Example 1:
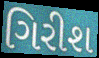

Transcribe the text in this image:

ગિરીશ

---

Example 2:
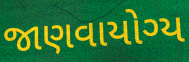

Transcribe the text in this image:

જાણવાયોગ્ય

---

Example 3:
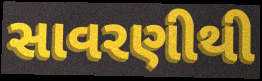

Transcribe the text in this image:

સાવરણીથી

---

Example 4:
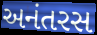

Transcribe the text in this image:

અનંતરસ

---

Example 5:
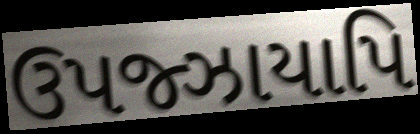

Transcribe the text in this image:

ઉપજ્ઝાયાપિ